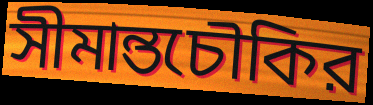
সীমান্তচৌকির